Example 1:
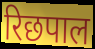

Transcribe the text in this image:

रिछपाल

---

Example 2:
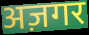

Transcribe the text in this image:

अज़गर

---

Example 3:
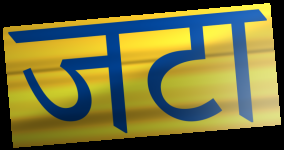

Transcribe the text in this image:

जटा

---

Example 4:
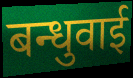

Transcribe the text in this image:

बन्धुवाई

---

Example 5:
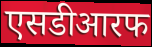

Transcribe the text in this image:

एसडीआरफ